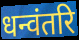
धन्वंतरि